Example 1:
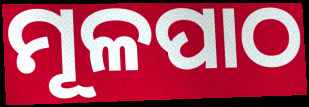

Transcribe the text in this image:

ମୂଳପାଠ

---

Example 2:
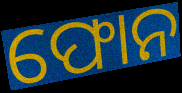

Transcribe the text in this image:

ଫୋନ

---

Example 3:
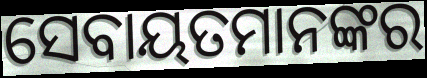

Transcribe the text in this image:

ସେବାୟତମାନଙ୍କର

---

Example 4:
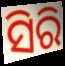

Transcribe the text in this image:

ସିରି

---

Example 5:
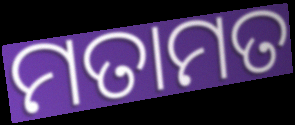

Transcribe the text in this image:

ମତାମତ